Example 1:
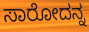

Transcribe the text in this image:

ಸಾರೋದನ್ನ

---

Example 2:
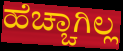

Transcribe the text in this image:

ಹೆಚ್ಚಾಗಿಲ್ಲ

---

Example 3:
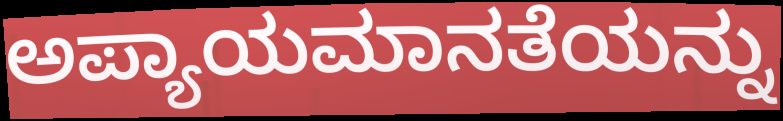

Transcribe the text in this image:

ಅಪ್ಯಾಯಮಾನತೆಯನ್ನು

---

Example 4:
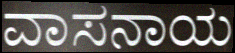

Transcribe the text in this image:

ವಾಸನಾಯ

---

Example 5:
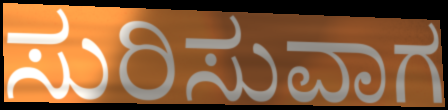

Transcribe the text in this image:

ಸುರಿಸುವಾಗ